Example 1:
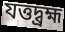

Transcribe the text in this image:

যত্তদ্ব্রহ্ম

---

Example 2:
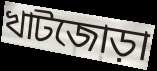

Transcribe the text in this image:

খাটজোড়া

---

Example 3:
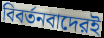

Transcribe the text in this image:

বিবর্তনবাদেরই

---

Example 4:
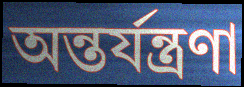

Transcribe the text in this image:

অন্তর্যন্ত্রণা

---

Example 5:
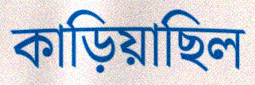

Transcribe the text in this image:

কাড়িয়াছিল